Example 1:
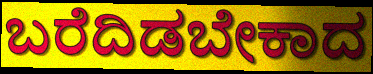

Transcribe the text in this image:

ಬರೆದಿಡಬೇಕಾದ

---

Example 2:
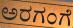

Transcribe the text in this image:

ಅರಗಂಗೆ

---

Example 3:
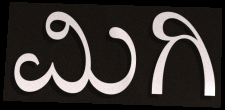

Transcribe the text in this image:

ಮಿಗಿ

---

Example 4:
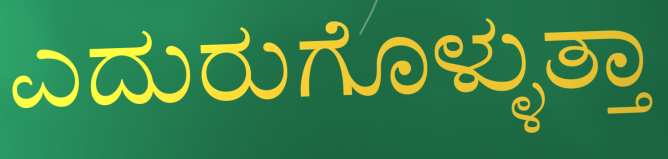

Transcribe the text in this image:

ಎದುರುಗೊಳ್ಳುತ್ತಾ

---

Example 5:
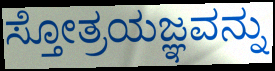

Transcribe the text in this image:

ಸ್ತೋತ್ರಯಜ್ಞವನ್ನು